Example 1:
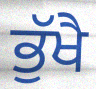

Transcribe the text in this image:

ਭੁੱਖੈ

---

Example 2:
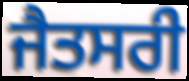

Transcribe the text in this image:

ਜੈਤਸਰੀ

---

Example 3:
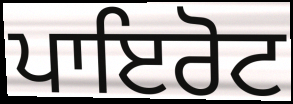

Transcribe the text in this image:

ਪਾਇਰੋਟ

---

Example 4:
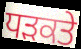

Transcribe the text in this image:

ਧੜਕਤੇ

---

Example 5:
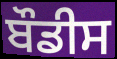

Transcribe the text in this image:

ਬੌਡੀਸ